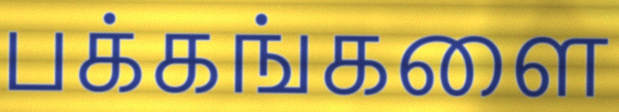
பக்கங்களை